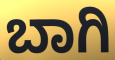
ಬಾಗಿ